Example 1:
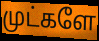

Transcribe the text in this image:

முட்களே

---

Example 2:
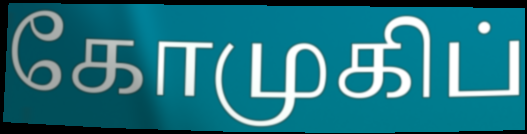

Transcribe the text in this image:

கோமுகிப்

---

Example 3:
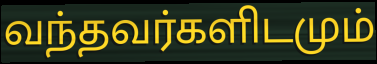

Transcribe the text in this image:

வந்தவர்களிடமும்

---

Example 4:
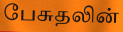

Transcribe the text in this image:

பேசுதலின்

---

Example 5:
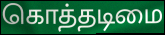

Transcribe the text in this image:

கொத்தடிமை